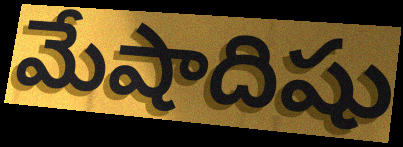
మేషాదిషు